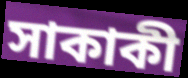
সাকাকী